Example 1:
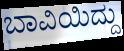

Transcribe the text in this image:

ಬಾವಿಯಿದ್ದು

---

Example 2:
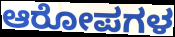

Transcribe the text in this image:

ಆರೋಪಗಳ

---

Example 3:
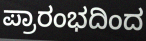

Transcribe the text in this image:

ಪ್ರಾರಂಭದಿಂದ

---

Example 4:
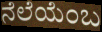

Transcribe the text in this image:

ನೆಲೆಯೆಂಬ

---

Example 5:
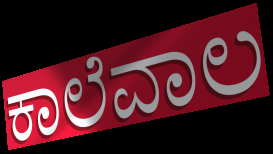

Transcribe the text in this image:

ಕಾಲೆವಾಲ